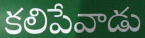
కలిపేవాడు